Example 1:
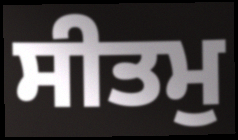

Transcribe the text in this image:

ਸੀਤਮੁ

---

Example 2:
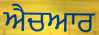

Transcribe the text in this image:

ਐਚਆਰ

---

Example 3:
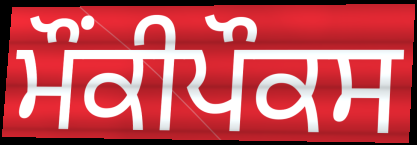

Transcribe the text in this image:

ਮੌਂਕੀਪੌਕਸ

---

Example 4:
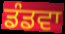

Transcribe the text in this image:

ਡੰਡਵਾ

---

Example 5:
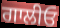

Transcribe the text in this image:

ਗਾਲੀਓ